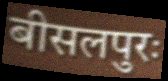
बीसलपुरः